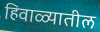
हिवाळ्यातील